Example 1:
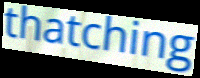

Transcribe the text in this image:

thatching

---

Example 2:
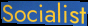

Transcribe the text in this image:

Socialist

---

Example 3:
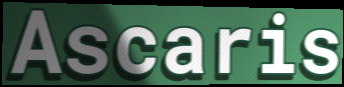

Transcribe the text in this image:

Ascaris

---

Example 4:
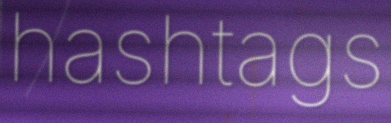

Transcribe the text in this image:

hashtags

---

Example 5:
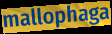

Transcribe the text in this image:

mallophaga